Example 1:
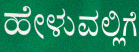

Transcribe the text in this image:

ಹೇಳುವಲ್ಲಿಗೆ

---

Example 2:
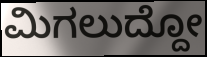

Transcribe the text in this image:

ಮಿಗಲುದ್ದೋ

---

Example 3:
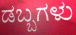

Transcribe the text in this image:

ಡಬ್ಬಗಳು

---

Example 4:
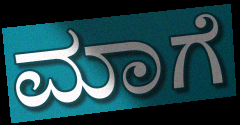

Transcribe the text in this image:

ಮಾಗೆ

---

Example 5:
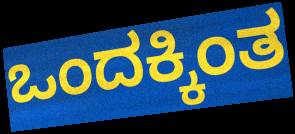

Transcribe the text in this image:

ಒಂದಕ್ಕಿಂತ